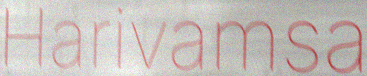
Harivamsa